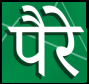
पैरे